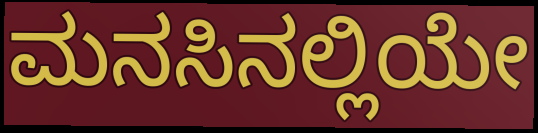
ಮನಸಿನಲ್ಲಿಯೇ